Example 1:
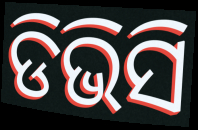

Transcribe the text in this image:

ଡିଭିସି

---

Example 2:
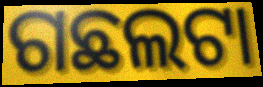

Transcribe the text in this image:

ଗଛଲଟା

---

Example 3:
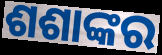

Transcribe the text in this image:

ଶଶାଙ୍କର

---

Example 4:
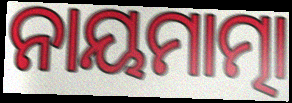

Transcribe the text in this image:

ନାୟମାତ୍ମା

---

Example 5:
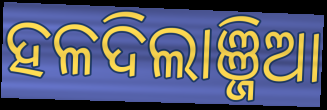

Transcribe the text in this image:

ହଳଦିଲାଞ୍ଜିଆ